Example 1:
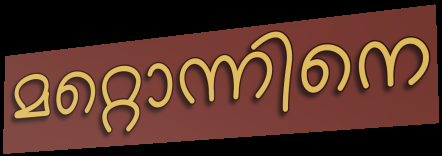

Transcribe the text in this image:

മറ്റൊന്നിനെ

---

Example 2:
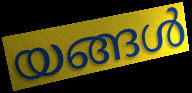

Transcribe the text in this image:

യങ്ങൾ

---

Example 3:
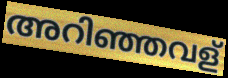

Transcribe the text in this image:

അറിഞ്ഞവള്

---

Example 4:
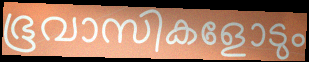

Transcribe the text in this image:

ഭൂവാസികളോടും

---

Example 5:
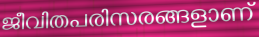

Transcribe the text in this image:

ജീവിതപരിസരങ്ങളാണ്